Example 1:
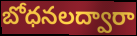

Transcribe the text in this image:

బోధనలద్వారా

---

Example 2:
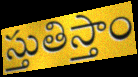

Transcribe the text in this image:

స్తుతిస్తాం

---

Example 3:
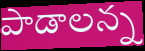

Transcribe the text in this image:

పాడాలన్న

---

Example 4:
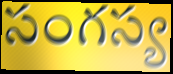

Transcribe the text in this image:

సంగస్య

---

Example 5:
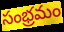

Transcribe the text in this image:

సంభ్రమం